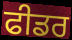
ਫੀਡਰ